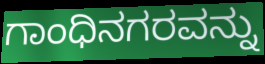
ಗಾಂಧಿನಗರವನ್ನು